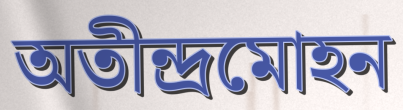
অতীন্দ্রমোহন